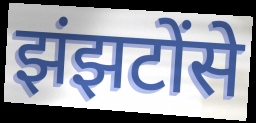
झंझटोंसे